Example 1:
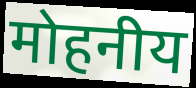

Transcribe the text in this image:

मोहनीय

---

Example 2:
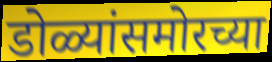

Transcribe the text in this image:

डोळ्यांसमोरच्या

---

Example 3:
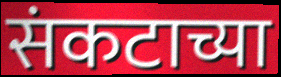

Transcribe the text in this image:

संकटाच्या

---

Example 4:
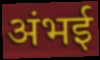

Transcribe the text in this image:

अंभई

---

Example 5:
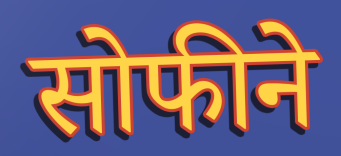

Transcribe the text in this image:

सोफीने